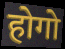
होगो